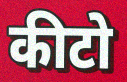
कीटो